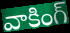
వాకింగ్